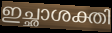
ഇച്ഛാശക്തി